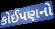
કોઈપણનો